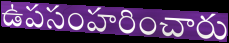
ఉపసంహరించారు